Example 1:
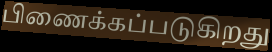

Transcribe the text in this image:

பிணைக்கப்படுகிறது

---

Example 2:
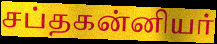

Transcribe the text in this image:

சப்தகன்னியர்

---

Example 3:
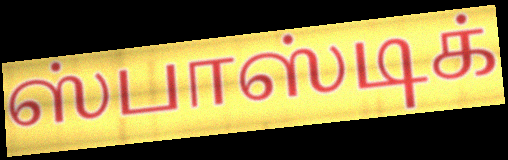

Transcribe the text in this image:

ஸ்பாஸ்டிக்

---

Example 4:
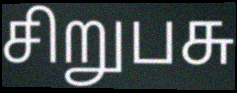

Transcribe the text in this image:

சிறுபசு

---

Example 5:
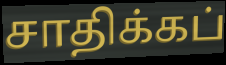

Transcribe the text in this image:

சாதிக்கப்